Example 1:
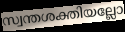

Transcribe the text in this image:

സ്വന്തശക്തിയല്ലോ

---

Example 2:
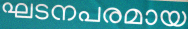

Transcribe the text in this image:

ഘടനപരമായ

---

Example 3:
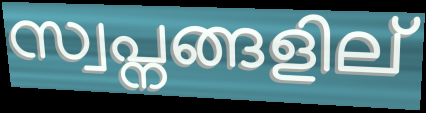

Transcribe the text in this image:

സ്വപ്നങ്ങളില്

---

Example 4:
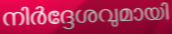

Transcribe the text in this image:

നിർദ്ദേശവുമായി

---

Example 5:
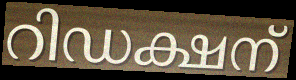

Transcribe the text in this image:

റിഡക്ഷന്